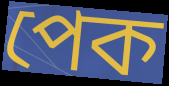
পেক